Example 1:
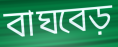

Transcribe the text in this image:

বাঘবেড়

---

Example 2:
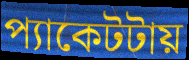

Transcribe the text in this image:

প্যাকেটটায়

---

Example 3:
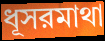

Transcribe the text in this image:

ধূসরমাথা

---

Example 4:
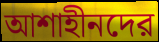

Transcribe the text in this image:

আশাহীনদের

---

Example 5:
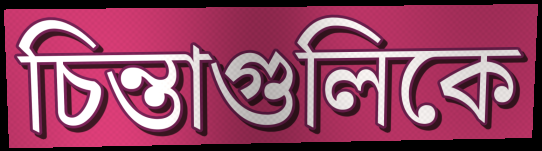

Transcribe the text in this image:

চিন্তাগুলিকে